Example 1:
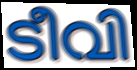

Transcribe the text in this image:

ടീവി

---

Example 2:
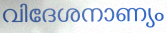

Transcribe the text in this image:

വിദേശനാണ്യം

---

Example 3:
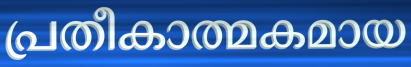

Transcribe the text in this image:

പ്രതീകാത്മകമായ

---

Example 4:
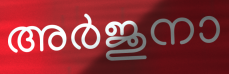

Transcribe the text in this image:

അർജുനാ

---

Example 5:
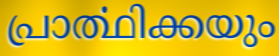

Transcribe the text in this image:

പ്രാൎത്ഥിക്കയും